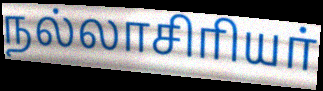
நல்லாசிரியர்